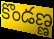
కొండణ్ణ